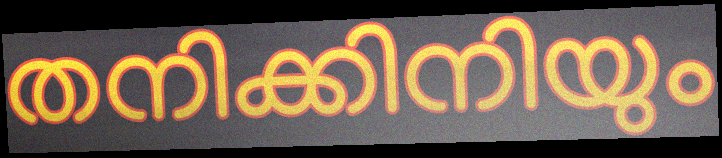
തനിക്കിനിയും